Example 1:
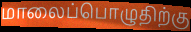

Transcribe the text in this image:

மாலைப்பொழுதிற்கு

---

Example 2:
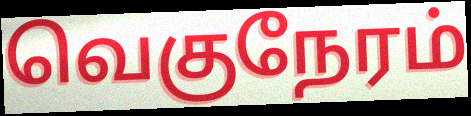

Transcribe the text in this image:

வெகுநேரம்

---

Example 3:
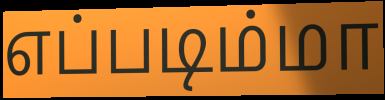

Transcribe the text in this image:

எப்படிம்மா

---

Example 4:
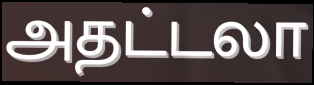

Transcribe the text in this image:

அதட்டலா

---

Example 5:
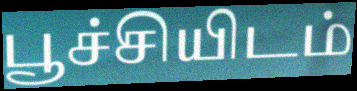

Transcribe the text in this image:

பூச்சியிடம்